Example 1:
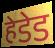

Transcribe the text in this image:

हेडेड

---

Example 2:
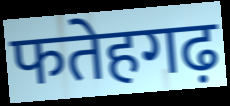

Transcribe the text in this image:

फतेहगढ़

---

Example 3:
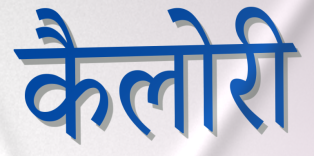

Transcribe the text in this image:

कैलोरी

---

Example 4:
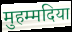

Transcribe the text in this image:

मुहम्मदिया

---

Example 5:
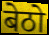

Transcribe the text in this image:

बेठो